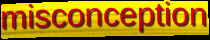
misconception